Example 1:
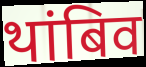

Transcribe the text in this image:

थांबिव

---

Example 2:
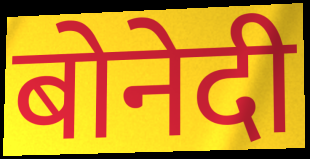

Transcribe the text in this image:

बोनेदी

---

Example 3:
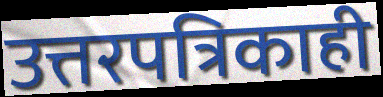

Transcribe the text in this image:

उत्तरपत्रिकाही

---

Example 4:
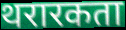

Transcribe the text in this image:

थरारकता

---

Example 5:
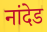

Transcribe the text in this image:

नांदेड